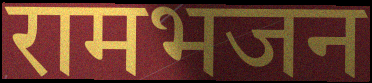
रामभजन